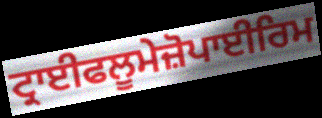
ਟ੍ਰਾਈਫਲੂਮੇਜ਼ੋਪਾਈਰਿਮ